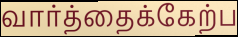
வார்த்தைக்கேற்ப